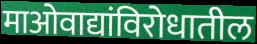
माओवाद्यांविरोधातील